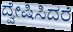
ದ್ವೇಷಿಸಿದರೆ